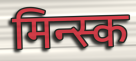
मिन्स्क